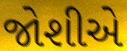
જોશીએ